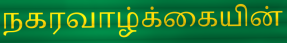
நகரவாழ்க்கையின்